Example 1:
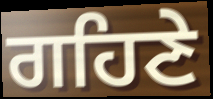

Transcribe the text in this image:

ਗਹਿਣੇ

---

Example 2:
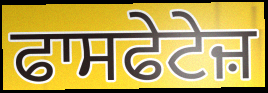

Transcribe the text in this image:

ਫਾਸਫੇਟੇਜ਼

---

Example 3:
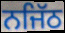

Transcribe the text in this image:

ਨਜਿੱਠ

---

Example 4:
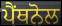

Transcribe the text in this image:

ਪੈਂਥਨੋਲ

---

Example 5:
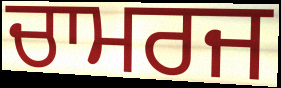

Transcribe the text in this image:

ਚਾਮਰਜ